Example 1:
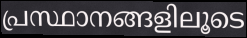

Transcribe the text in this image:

പ്രസ്ഥാനങ്ങളിലൂടെ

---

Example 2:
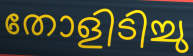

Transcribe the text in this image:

തോളിടിച്ചു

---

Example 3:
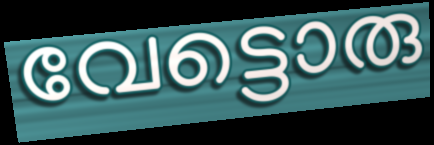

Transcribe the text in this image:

വേട്ടൊരു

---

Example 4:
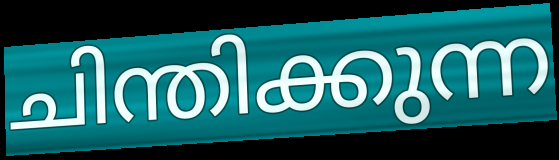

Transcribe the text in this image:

ചിന്തിക്കുന്ന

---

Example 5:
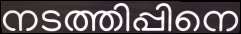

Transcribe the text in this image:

നടത്തിപ്പിനെ